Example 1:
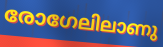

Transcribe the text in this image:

രോഗേലിലാണു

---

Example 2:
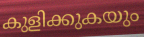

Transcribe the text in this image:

കുളിക്കുകയും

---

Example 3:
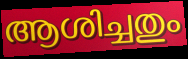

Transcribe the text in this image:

ആശിച്ചതും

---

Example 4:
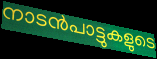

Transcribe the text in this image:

നാടൻപാട്ടുകളുടെ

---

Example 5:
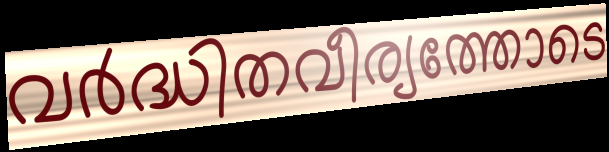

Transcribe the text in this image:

വർദ്ധിതവീര്യത്തോടെ